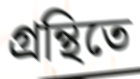
গ্রন্থিতে